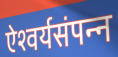
ऐश्वर्यसंपन्न